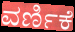
ವರ್ಣಿಕೆ